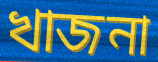
খাজনা